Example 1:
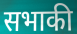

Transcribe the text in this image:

सभाकी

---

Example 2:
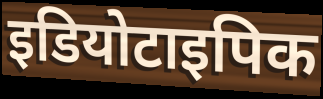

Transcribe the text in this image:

इडियोटाइपिक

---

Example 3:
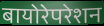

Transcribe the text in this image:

बायोरेपरेशन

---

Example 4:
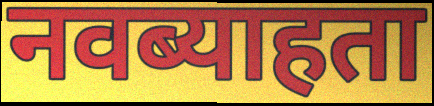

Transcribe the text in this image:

नवब्याहता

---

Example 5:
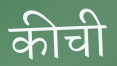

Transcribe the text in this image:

कीची